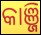
କାଞ୍ଜି